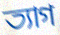
ত্যাগ